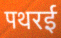
पथरई